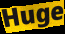
Huge